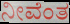
ನೀವೆಂತ